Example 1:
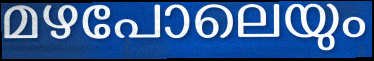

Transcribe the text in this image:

മഴപോലെയും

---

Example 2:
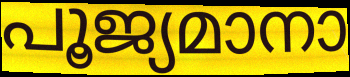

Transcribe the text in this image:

പൂജ്യമാനാ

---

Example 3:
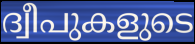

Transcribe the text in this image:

ദ്വീപുകളുടെ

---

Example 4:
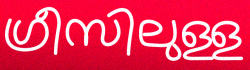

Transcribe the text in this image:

ഗ്രീസിലുള്ള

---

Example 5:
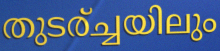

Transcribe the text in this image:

തുടര്ച്ചയിലും